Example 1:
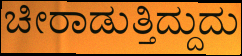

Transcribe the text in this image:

ಚೀರಾಡುತ್ತಿದ್ದುದು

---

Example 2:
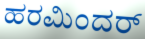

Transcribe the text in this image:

ಹರಮಿಂದರ್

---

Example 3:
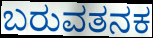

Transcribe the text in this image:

ಬರುವತನಕ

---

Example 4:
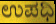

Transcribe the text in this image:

ಉಪಧಿ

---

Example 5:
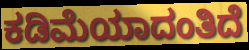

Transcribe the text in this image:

ಕಡಿಮೆಯಾದಂತಿದೆ